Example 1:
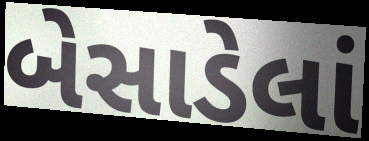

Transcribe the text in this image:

બેસાડેલાં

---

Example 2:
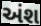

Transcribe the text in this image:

અંશ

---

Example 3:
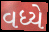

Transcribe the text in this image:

વધ્યે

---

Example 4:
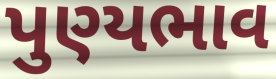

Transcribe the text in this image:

પુણ્યભાવ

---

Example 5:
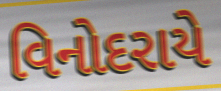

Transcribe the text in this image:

વિનોદરાયે